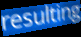
resulting